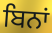
ਬਿਨਾਂ